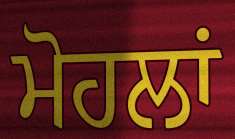
ਮੋਹਲਾਂ